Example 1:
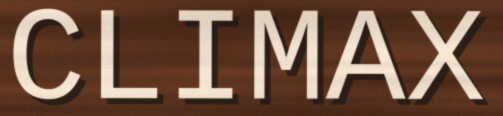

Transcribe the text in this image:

CLIMAX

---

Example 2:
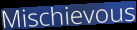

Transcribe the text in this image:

Mischievous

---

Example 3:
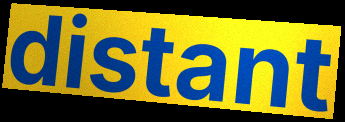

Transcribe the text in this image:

distant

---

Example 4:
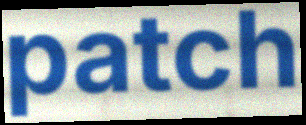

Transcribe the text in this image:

patch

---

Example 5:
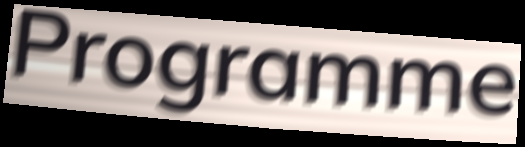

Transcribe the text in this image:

Programme